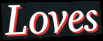
Loves